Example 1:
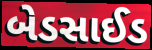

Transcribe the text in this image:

બેડસાઈડ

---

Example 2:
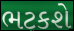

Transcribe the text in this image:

ભટકશે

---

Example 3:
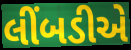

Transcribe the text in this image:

લીંબડીએ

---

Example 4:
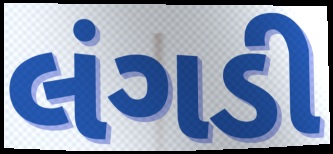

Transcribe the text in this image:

લંગડી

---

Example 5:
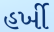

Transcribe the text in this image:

હર્ખી